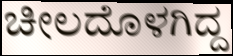
ಚೀಲದೊಳಗಿದ್ದ